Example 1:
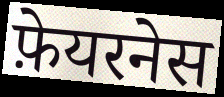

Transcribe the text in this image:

फ़ेयरनेस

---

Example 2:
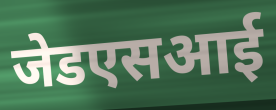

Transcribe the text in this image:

जेडएसआई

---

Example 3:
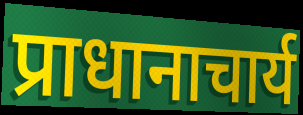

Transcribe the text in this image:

प्राधानाचार्य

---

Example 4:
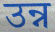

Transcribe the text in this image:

उन्न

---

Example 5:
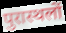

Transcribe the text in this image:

पुरास्थलों